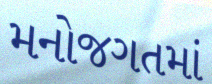
મનોજગતમાં